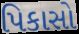
પિકાસો